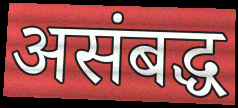
असंबद्ध